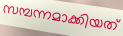
സമ്പന്നമാക്കിയത്